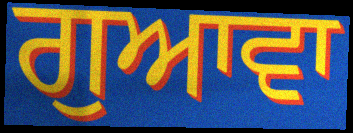
ਗੁਆਵਾ